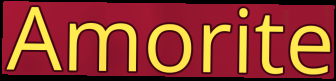
Amorite